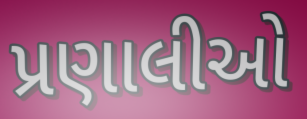
પ્રણાલીઓ